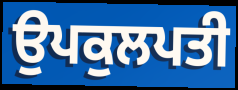
ਉਪਕੁਲਪਤੀ